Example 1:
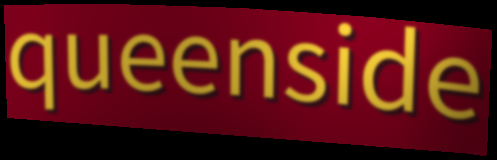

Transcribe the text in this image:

queenside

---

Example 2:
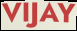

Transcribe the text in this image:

VIJAY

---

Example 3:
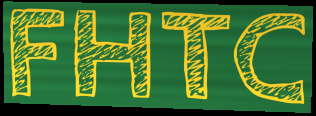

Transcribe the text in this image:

FHTC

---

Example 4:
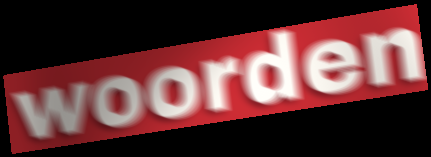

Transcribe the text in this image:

woorden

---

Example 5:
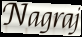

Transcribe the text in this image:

Nagraj